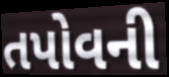
તપોવની